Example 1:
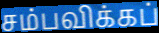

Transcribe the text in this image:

சம்பவிக்கப்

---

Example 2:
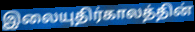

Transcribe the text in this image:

இலையுதிர்காலத்தின்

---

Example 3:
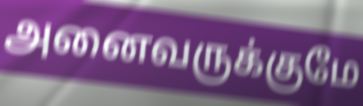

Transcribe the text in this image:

அனைவருக்குமே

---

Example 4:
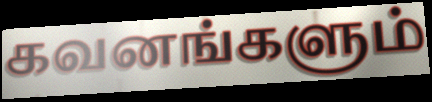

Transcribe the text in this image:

கவனங்களும்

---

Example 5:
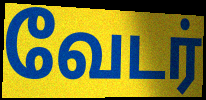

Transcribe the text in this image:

வேடர்